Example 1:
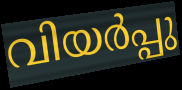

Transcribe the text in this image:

വിയർപ്പു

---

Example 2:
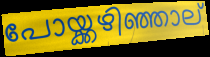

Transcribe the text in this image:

പോയ്ക്കഴിഞ്ഞാല്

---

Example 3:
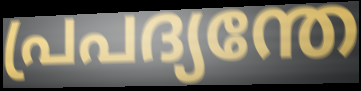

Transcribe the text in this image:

പ്രപദ്യന്തേ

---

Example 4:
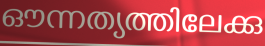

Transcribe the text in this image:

ഔന്നത്യത്തിലേക്കു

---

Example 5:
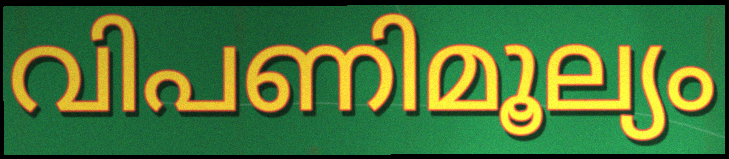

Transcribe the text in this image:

വിപണിമൂല്യം